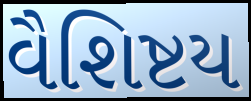
વૈશિષ્ટય